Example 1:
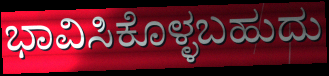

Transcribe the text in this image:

ಭಾವಿಸಿಕೊಳ್ಳಬಹುದು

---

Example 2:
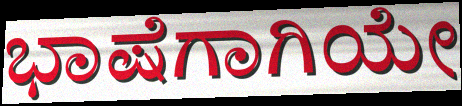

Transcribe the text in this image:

ಭಾಷೆಗಾಗಿಯೇ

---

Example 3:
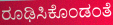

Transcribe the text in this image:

ರೂಢಿಸಿಕೊಂಡಂತೆ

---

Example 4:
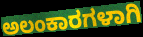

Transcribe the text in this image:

ಅಲಂಕಾರಗಳಾಗಿ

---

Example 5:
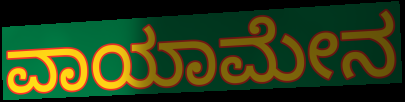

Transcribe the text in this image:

ವಾಯಾಮೇನ